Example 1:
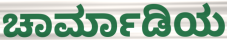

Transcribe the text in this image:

ಚಾರ್ಮಾಡಿಯ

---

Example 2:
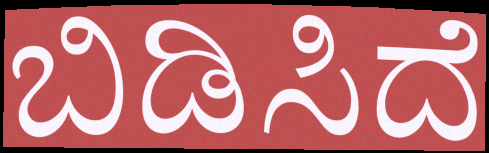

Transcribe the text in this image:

ಬಿಡಿಸಿದೆ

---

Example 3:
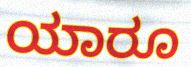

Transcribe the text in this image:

ಯಾರೂ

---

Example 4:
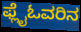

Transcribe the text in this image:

ಫ್ಲೈಓವರಿನ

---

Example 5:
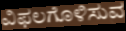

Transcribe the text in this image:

ವಿಫಲಗೊಳಿಸುವ